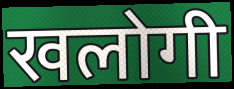
खलोगी